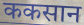
ककसान